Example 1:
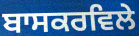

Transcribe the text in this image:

ਬਾਸਕਰਵਿਲੇ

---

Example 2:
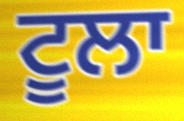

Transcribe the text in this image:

ਟੂਲਾ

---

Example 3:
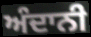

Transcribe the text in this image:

ਅੰਦਾਨੀ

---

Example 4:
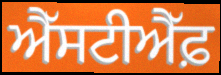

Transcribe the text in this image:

ਐੱਸਟੀਐੱਫ਼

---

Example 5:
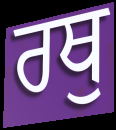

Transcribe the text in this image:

ਰਥੁ